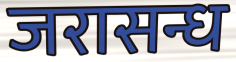
जरासन्ध